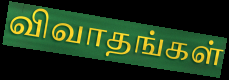
விவாதங்கள்